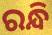
ରନ୍ଧି